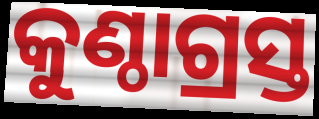
କୁଣ୍ଠାଗ୍ରସ୍ତ